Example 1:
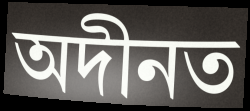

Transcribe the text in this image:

অদীনত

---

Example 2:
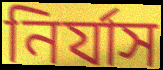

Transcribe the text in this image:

নিৰ্যাস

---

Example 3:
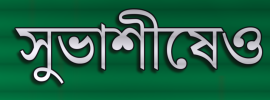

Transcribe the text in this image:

সুভাশীষেও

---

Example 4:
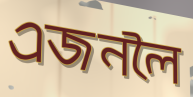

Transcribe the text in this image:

এজনলৈ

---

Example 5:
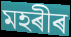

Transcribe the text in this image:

মহৰীৰ